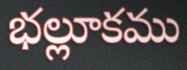
భల్లూకము